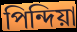
পিন্দিয়া